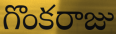
గొంకరాజు